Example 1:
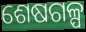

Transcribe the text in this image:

ଶେଷଗଳ୍ପ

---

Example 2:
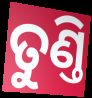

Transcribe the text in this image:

ତୁଣ୍ତି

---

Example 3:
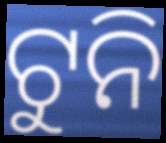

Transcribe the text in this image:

ଟୁନି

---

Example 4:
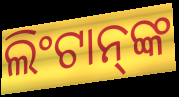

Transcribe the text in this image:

ଲିଂଟାନ୍‍ଙ୍କ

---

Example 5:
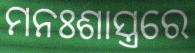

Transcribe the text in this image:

ମନଃଶାସ୍ତ୍ରରେ